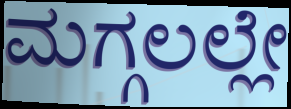
ಮಗ್ಗಲಲ್ಲೇ